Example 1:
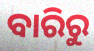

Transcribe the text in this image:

ବାରିରୁ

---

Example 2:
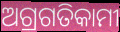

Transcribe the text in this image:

ଅଗ୍ରଗତିକାମୀ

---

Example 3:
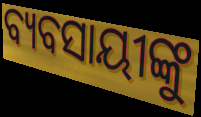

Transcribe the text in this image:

ବ୍ୟବସାୟୀଙ୍କୁ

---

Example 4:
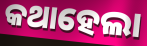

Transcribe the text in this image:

କଥାହେଲା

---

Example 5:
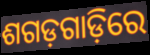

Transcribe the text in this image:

ଶଗଡ଼ଗାଡ଼ିରେ